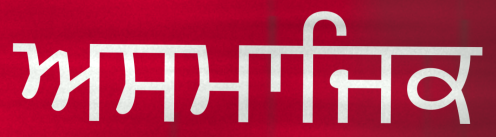
ਅਸਮਾਜਿਕ